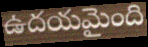
ఉదయమైంది